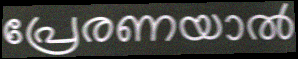
പ്രേരണയാൽ